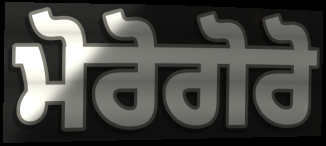
ਮੋਰੋਗੋਰੋ